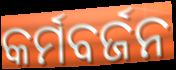
କର୍ମବର୍ଜନ